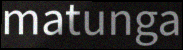
matunga